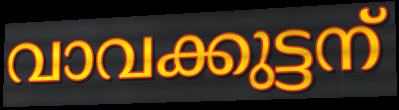
വാവക്കുട്ടന്